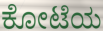
ಕೋಟೆಯ